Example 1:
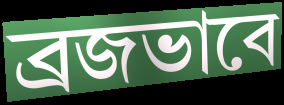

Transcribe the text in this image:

ব্রজভাবে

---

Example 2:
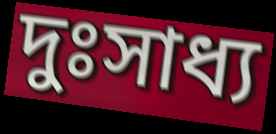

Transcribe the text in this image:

দুঃসাধ্য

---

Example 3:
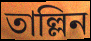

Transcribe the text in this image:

তাল্লিন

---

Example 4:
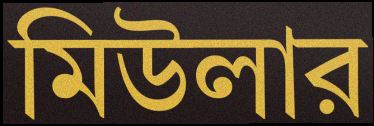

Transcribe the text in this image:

মিউলার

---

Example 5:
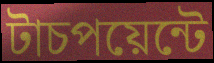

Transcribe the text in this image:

টাচপয়েন্টে